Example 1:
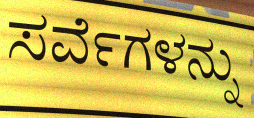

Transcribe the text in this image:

ಸರ್ವೆಗಳನ್ನು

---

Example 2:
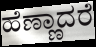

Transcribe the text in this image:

ಹೆಣ್ಣಾದರೆ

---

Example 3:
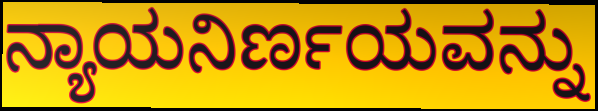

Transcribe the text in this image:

ನ್ಯಾಯನಿರ್ಣಯವನ್ನು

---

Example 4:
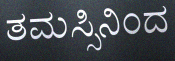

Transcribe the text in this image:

ತಮಸ್ಸಿನಿಂದ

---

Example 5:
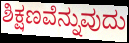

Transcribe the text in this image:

ಶಿಕ್ಷಣವೆನ್ನುವುದು